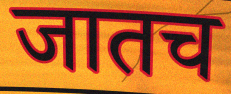
जातच